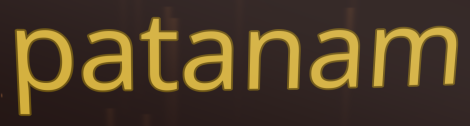
patanam